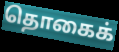
தொகைக்